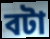
বটা